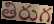
తిరుగ